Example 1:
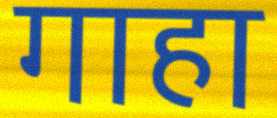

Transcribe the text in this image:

गाहा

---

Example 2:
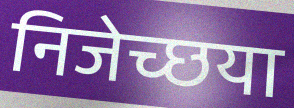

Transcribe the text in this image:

निजेच्छया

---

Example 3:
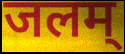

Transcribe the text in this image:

जलम्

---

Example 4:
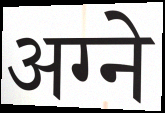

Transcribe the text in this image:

अग्ने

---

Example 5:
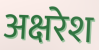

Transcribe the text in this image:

अक्षरेश